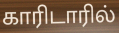
காரிடாரில்